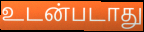
உடன்படாது